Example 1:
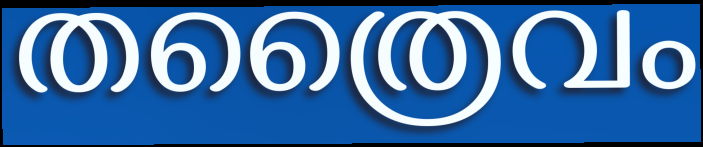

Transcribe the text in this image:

തത്രൈവം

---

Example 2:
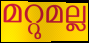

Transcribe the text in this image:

മറ്റുമല്ല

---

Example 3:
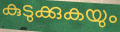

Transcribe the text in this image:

കുടുക്കുകയും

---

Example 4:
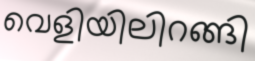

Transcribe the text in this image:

വെളിയിലിറങ്ങി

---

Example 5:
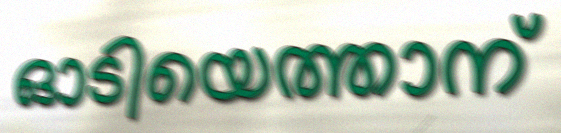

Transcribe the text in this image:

ഓടിയെത്താന്